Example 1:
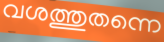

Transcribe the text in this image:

വശത്തുതന്നെ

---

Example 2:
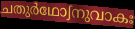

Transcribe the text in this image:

ചതുർഥോഽനുവാകഃ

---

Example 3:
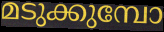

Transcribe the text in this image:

മടുക്കുമ്പോ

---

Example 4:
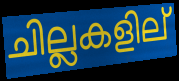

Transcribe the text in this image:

ചില്ലകളില്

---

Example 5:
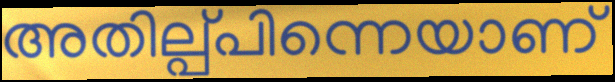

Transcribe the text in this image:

അതില്പ്പിന്നെയാണ്